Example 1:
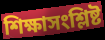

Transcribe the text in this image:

শিক্ষাসংশ্লিষ্ট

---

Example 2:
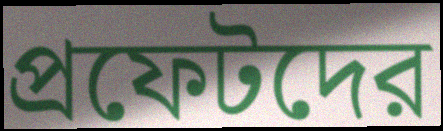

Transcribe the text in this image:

প্রফেটদের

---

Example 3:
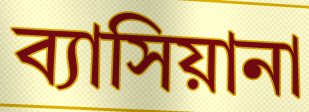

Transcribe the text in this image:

ব্যাসিয়ানা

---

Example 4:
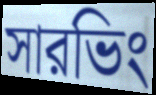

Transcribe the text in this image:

সারভিং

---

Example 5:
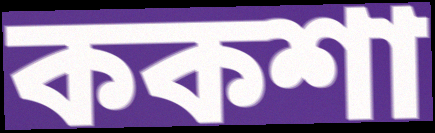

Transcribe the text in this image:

ককশা